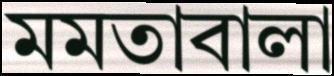
মমতাবালা